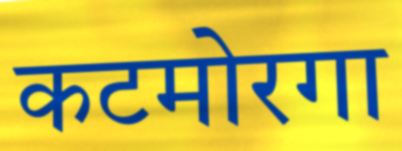
कटमोरगा